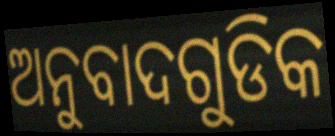
ଅନୁବାଦଗୁଡିକ